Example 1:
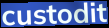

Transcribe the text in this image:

custodit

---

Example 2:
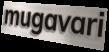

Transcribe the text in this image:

mugavari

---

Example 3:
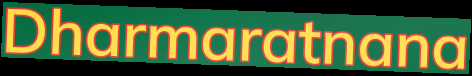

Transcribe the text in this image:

Dharmaratnana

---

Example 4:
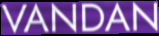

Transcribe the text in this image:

VANDAN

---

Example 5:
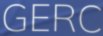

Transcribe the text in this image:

GERC